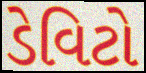
ડેવિટો